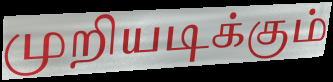
முறியடிக்கும்